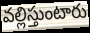
వల్లిస్తుంటారు